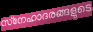
സ്‌നേഹാദരങ്ങളുടെ